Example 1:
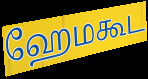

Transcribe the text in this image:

ஹேமகூட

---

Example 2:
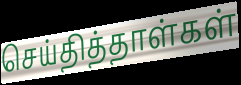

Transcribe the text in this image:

செய்தித்தாள்கள்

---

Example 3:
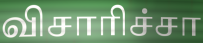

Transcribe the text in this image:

விசாரிச்சா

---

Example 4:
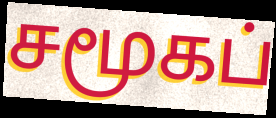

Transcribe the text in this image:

சமூகப்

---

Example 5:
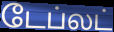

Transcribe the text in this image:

டேப்லட்